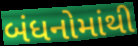
બંધનોમાંથી